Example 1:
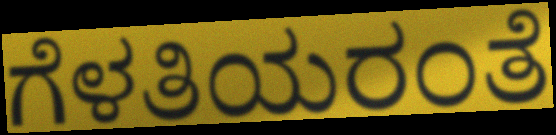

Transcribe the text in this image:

ಗೆಳತಿಯರಂತೆ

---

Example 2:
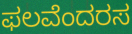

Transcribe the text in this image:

ಫಲವೆಂದರಸ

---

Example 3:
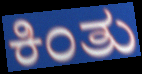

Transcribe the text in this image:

ಕಿಂತು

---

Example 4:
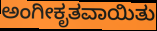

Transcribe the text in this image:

ಅಂಗೀಕೃತವಾಯಿತು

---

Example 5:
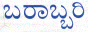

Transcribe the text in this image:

ಬರಾಬ್ಬರಿ